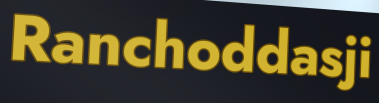
Ranchoddasji